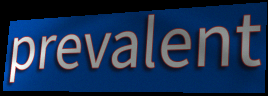
prevalent